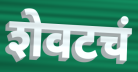
शेवटचं